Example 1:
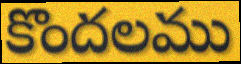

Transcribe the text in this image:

కొందలము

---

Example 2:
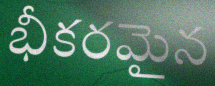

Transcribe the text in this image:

భీకరమైన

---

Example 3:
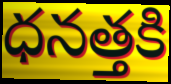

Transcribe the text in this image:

ధనత్తకి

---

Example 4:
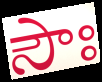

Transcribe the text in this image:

సౌః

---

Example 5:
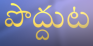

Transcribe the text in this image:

పొద్దుట